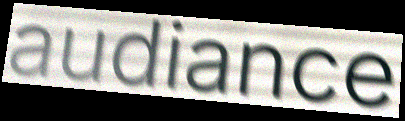
audiance